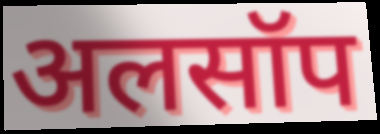
अलसॉप